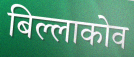
बिल्लाकोव